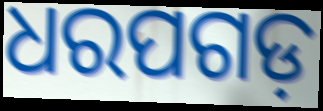
ଧରପଗଡ଼